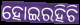
ହୋଇରହିଚି